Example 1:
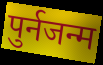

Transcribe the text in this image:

पुर्नजन्म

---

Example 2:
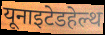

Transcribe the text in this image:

यूनाइटेडहेल्थ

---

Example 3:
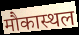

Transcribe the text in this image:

मौकास्थल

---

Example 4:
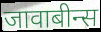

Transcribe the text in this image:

जावाबीन्स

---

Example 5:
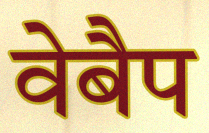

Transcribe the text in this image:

वेबैप